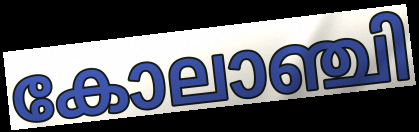
കോലാഞ്ചി